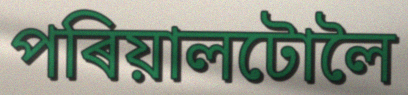
পৰিয়ালটোলৈ